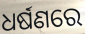
ଧର୍ଷଣରେ